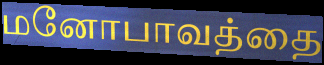
மனோபாவத்தை